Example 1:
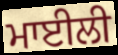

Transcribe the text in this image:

ਮਾਈਲੀ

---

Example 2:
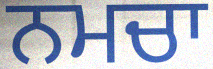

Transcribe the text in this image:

ਨਮਚਾ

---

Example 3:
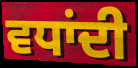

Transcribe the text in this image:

ਵਧਾਂਦੀ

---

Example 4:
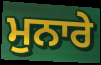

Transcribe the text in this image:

ਮੁਨਾਰੇ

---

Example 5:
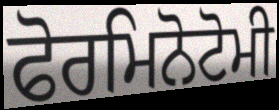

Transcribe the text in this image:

ਫੋਰਮਿਨੋਟੋਮੀ